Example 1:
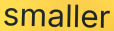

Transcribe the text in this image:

smaller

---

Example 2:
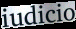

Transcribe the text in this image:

iudicio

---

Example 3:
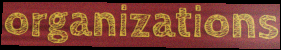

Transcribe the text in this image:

organizations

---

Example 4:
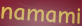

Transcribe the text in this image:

namami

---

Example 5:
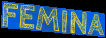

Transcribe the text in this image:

FEMINA